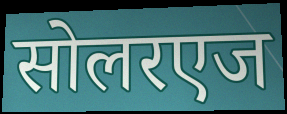
सोलरएज